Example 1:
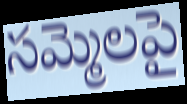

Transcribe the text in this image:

సమ్మెలపై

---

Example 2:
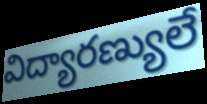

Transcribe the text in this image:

విద్యారణ్యులే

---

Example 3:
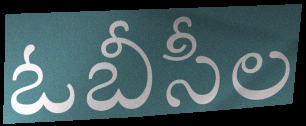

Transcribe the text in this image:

ఓబీసీల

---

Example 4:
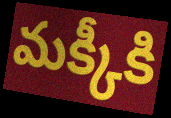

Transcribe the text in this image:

మక్కీకి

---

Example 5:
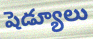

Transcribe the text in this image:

షెడ్యూలు